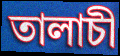
তালাচী